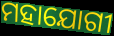
ମହାଯୋଗୀ